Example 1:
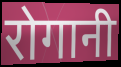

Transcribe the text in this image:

रोगानी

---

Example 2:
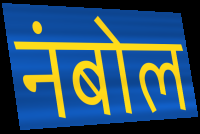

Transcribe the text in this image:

नंबोल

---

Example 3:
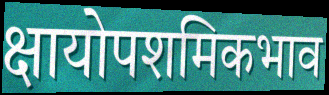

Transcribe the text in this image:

क्षायोपशमिकभाव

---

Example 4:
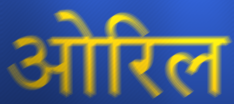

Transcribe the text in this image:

ओरिल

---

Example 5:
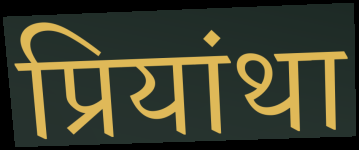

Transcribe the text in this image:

प्रियांथा